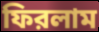
ফিরলাম